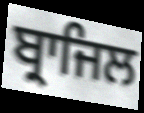
ਬ੍ਰਾਜਿਲ